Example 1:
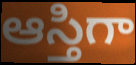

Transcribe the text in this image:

ఆస్తిగా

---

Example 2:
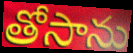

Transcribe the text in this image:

తోసాను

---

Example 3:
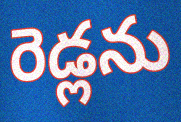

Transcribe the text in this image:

రెడ్లను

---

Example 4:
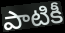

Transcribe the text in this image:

పాటికీ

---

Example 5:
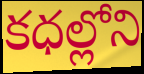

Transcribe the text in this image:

కధల్లోని